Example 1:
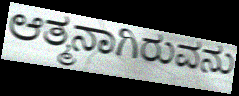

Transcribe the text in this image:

ಆತ್ಮನಾಗಿರುವನು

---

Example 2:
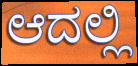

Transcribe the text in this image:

ಆದಲ್ಲಿ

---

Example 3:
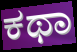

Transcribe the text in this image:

ಕಥಾ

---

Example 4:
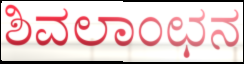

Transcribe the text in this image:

ಶಿವಲಾಂಛನ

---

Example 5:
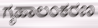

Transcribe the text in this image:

ಗೃಹಾಲಂಕರಣ